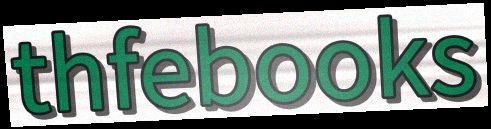
thfebooks